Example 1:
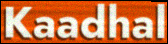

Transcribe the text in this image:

Kaadhal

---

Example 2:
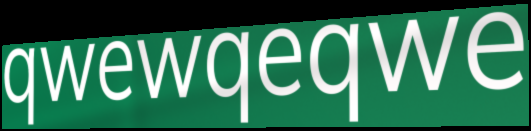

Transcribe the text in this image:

qwewqeqwe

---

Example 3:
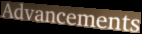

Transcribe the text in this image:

Advancements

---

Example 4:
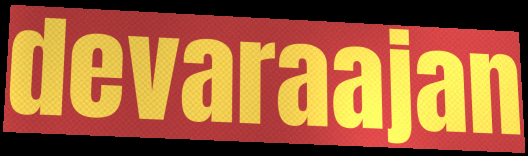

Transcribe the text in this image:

devaraajan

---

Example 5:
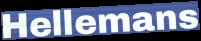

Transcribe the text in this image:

Hellemans